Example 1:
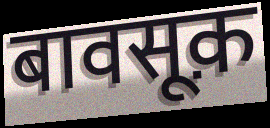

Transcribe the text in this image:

बावसूक़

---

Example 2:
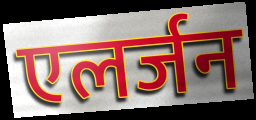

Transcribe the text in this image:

एलर्जन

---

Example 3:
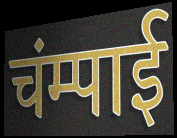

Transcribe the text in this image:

चंम्पाई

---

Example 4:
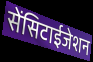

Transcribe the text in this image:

सेंसिटाईजेशन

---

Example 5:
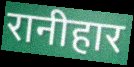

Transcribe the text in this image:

रानीहार